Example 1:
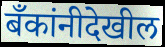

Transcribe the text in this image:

बँकांनीदेखील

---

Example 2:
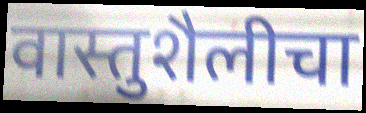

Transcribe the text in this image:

वास्तुशैलीचा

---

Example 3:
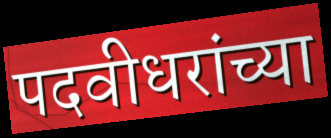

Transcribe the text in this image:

पदवीधरांच्या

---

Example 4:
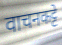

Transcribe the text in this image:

वाचनकट्टे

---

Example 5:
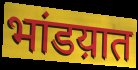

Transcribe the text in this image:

भांडय़ात